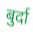
बुर्दा